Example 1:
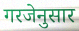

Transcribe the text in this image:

गरजेनुसार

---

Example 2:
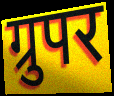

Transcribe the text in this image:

ग्रुपर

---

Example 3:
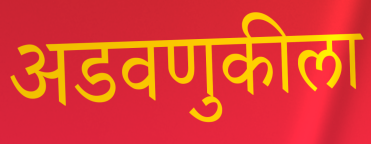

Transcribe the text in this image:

अडवणुकीला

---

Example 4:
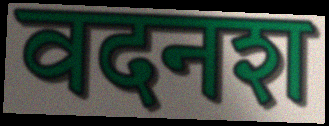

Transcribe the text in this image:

वदनश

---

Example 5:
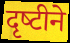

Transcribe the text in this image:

दृष्‍टीने